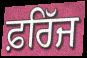
ਫ਼ਰਿੱਜ